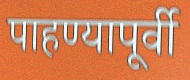
पाहण्यापूर्वी